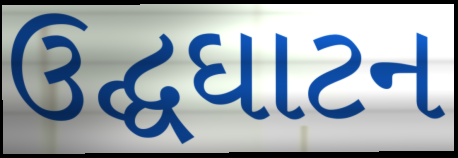
ઉદ્ઘઘાટન